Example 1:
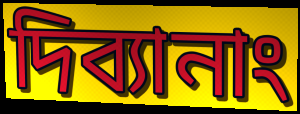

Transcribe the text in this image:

দিব্যানাং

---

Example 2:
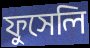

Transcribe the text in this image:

ফুসেলি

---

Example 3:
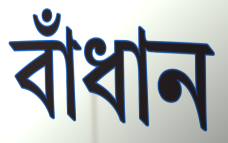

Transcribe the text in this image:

বাঁধান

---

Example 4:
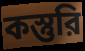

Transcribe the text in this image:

কস্তুরি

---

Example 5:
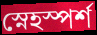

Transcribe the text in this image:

স্নেহস্পর্শ